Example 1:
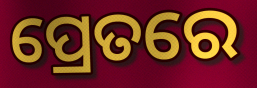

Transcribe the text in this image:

ପ୍ରେତରେ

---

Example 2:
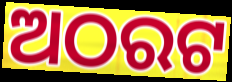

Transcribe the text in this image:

ଅଠରଟ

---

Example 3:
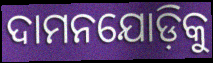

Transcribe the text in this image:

ଦାମନଯୋଡ଼ିକୁ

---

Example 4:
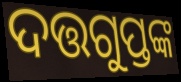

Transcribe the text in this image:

ଦତ୍ତଗୁପ୍ତଙ୍କ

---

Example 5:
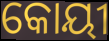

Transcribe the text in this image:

କୋୟୀ